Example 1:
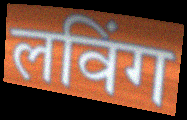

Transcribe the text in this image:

लविंग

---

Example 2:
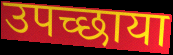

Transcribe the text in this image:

उपच्छाया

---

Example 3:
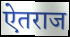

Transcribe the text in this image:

ऐतराज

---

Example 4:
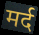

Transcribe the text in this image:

मर्द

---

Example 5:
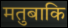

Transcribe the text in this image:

मतुबाकि